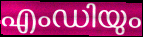
എംഡിയും